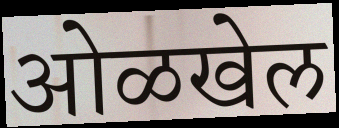
ओळखेल